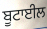
ਬੂਟਾਈਲ